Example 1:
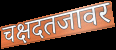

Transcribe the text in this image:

चक्षदतजावर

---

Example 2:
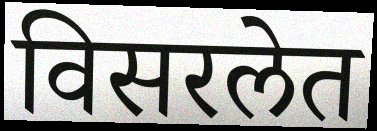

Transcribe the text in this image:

विसरलेत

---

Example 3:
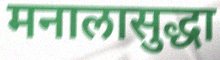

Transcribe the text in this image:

मनालासुद्धा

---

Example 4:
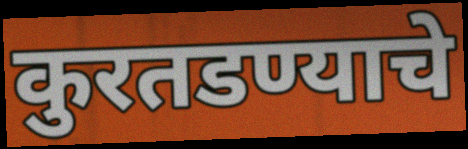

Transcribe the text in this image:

कुरतडण्याचे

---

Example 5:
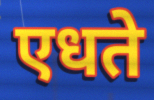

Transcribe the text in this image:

एधते